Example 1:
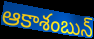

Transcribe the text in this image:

ఆకాశంబున్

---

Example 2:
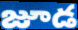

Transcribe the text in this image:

జూడ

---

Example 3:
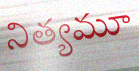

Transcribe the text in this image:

నిత్యమూ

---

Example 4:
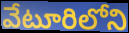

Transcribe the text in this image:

వేటూరిలోని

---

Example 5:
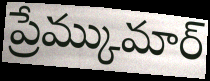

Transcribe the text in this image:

ప్రేమ్కుమార్